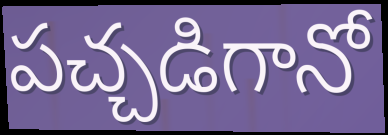
పచ్చడిగానో